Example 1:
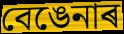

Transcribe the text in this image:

বেঙেনাৰ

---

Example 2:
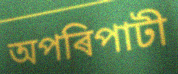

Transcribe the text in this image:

অপৰিপাটী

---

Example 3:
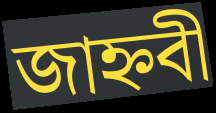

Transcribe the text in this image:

জাহ্নবী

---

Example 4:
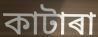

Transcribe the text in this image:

কাটাৰা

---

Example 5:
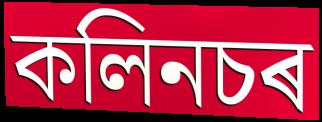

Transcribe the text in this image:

কলিনচৰ